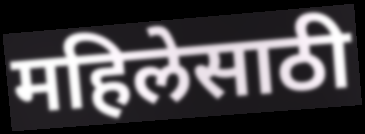
महिलेसाठी